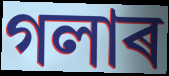
গলাৰ